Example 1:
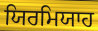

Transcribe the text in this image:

ਯਿਰਮਿਯਾਹ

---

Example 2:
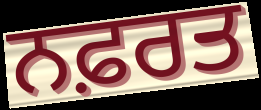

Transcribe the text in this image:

ਨਫ਼ਰਤ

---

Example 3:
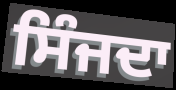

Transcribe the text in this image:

ਸਿੰਜਦਾ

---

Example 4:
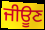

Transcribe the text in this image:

ਜੀਊਣ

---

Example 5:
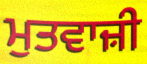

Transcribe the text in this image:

ਮੁਤਵਾਜ਼ੀ